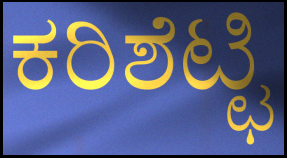
ಕರಿಶೆಟ್ಟಿ